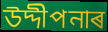
উদ্দীপনাৰ